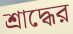
শ্রাদ্ধের